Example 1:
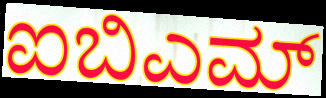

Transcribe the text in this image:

ಐಬಿಎಮ್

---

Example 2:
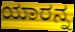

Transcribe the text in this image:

ಯಾರನ್ನ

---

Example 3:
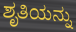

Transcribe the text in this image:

ಶೃತಿಯನ್ನು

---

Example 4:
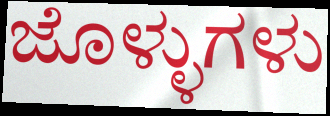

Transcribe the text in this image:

ಜೊಳ್ಳುಗಳು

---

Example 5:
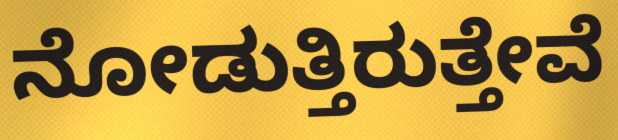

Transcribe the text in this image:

ನೋಡುತ್ತಿರುತ್ತೇವೆ